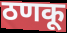
ठणकू